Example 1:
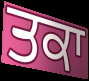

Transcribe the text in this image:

ਤਕਾ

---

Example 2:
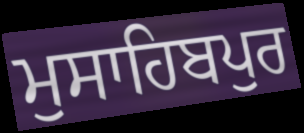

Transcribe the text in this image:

ਮੁਸਾਹਿਬਪੁਰ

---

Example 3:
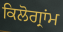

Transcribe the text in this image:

ਕਿਲੋਗ੍ਰਾਂਮ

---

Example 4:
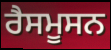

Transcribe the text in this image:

ਰੈਸਮੂਸਨ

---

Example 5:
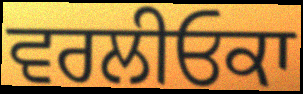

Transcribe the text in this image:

ਵਰਲੀਓਕਾ